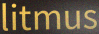
litmus